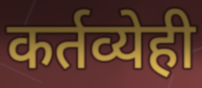
कर्तव्येही